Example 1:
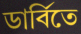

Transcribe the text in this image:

ডার্বিতে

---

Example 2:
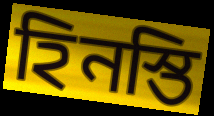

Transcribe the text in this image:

হিনস্তি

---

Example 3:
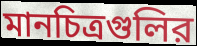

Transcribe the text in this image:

মানচিত্রগুলির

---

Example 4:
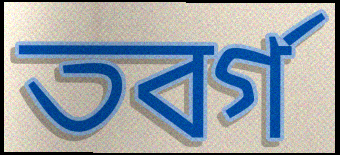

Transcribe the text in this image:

তবর্গ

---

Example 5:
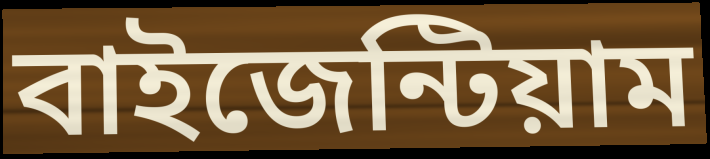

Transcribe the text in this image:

বাইজেন্টিয়াম